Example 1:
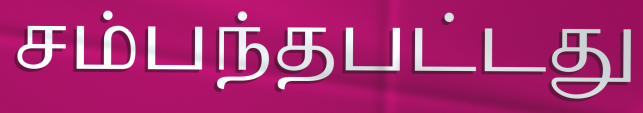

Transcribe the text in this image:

சம்பந்தபட்டது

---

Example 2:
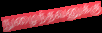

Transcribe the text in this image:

நுழைந்தவனுக்கு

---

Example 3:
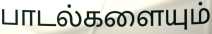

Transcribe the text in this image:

பாடல்களையும்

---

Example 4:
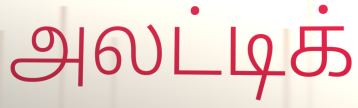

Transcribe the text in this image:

அலட்டிக்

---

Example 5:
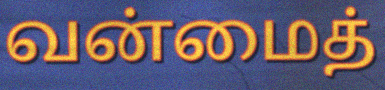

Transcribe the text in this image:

வன்மைத்